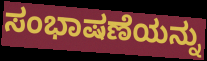
ಸಂಭಾಷಣೆಯನ್ನು